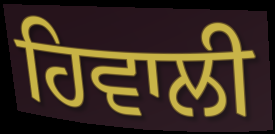
ਹਿਵਾਲੀ